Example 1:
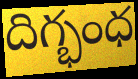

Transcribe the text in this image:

దిగ్భంధ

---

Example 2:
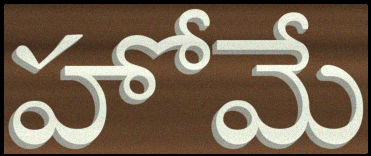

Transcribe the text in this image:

హోమే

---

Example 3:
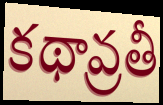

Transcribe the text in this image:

కథావ్రతీ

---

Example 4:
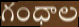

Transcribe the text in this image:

గంధాల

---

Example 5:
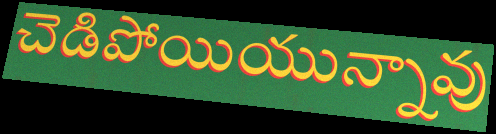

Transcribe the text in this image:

చెడిపోయియున్నావు